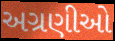
અગ્રણીઓ